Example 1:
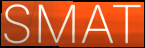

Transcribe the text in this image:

SMAT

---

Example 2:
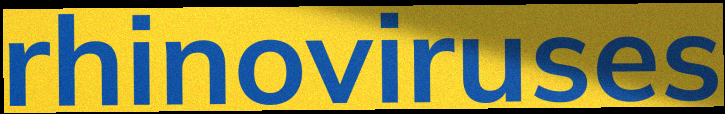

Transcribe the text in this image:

rhinoviruses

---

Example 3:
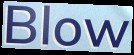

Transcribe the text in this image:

Blow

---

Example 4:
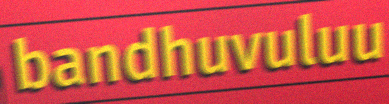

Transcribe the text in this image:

bandhuvuluu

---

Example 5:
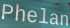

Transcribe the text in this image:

Phelan